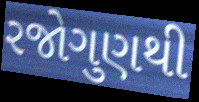
રજોગુણથી